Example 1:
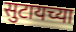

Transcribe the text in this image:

सुटायच्या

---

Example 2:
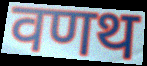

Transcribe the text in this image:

वणथ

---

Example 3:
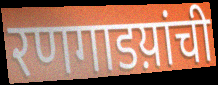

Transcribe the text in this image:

रणगाडय़ांची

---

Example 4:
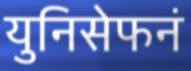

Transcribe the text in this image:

युनिसेफनं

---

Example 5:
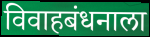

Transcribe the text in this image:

विवाहबंधनाला